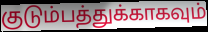
குடும்பத்துக்காகவும்